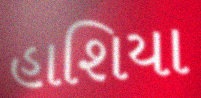
હાશિયા